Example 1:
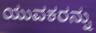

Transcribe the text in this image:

ಯುವಕರನ್ನು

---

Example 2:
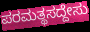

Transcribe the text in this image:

ಪರಮತ್ಥಸದ್ದೇಸು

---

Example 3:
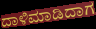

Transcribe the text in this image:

ದಾಳಿಮಾಡಿದಾಗ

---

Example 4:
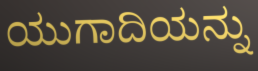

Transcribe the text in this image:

ಯುಗಾದಿಯನ್ನು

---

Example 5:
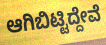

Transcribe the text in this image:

ಆಗಿಬಿಟ್ಟಿದ್ದೇವೆ